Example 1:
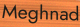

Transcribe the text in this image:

Meghnad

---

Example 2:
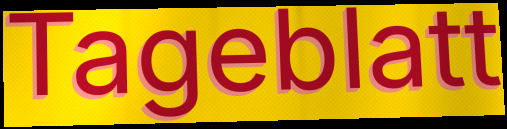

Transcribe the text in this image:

Tageblatt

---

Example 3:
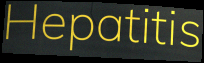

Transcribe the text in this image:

Hepatitis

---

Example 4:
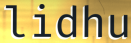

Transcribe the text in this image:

lidhu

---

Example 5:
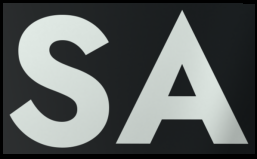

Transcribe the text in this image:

SA